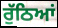
ਰੁੱਠਿਆਂ